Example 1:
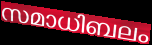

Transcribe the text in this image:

സമാധിബലം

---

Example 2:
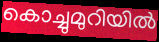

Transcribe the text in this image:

കൊച്ചുമുറിയിൽ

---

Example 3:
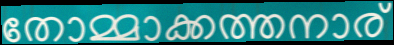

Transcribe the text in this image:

തോമ്മാക്കത്തനാര്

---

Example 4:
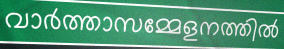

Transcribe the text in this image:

വാർത്താസമ്മേളനത്തിൽ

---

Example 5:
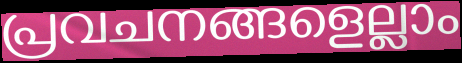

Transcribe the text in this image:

പ്രവചനങ്ങളെല്ലാം